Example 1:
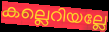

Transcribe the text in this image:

കല്ലെറിയല്ലേ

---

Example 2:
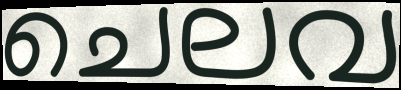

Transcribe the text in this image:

ചെലവ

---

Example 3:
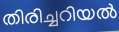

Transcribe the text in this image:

തിരിച്ചറിയൽ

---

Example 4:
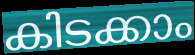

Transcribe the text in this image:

കിടക്കാം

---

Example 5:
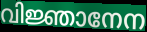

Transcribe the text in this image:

വിജ്ഞാനേന